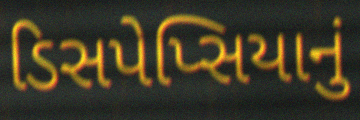
ડિસપેપ્સિયાનું